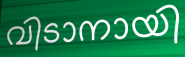
വിടാനായി